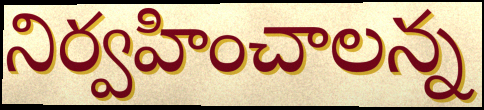
నిర్వహించాలన్న